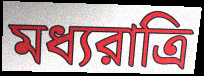
মধ্যরাত্রি